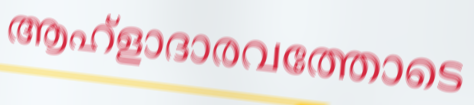
ആഹ്ളാദാരവത്തോടെ